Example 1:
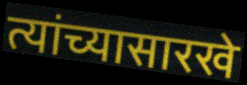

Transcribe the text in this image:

त्यांच्यासारखे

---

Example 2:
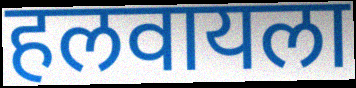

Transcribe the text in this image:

हलवायला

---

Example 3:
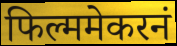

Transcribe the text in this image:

फिल्ममेकरनं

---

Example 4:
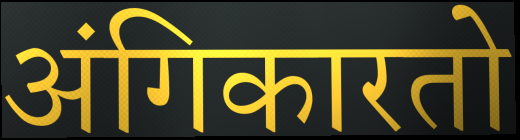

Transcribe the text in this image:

अंगिकारतो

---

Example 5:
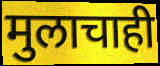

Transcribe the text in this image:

मुलाचाही